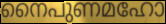
നൈപുണമഹോ